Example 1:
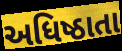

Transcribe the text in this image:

અધિષ્ઠાતા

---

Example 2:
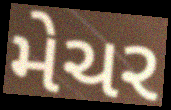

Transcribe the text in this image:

મેચર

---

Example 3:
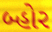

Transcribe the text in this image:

બ્હોર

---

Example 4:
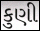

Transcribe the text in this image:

કુણી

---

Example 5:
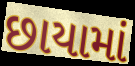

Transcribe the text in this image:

છાયામાં